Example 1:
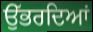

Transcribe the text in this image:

ਉੱਭਰਦਿਆਂ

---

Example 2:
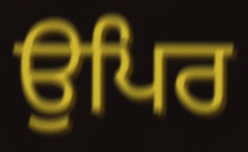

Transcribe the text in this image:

ਉਪਿਰ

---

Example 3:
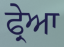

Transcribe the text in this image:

ਫ੍ਰੇਆ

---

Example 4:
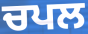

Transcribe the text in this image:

ਚਪਲ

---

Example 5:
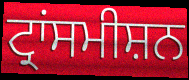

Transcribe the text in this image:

ਟ੍ਰਾਂਸਮੀਸ਼ਨ